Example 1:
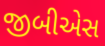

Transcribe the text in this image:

જીબીએસ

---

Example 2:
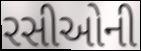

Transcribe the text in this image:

રસીઓની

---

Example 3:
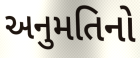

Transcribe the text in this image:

અનુમતિનો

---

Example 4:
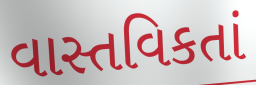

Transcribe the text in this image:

વાસ્તવિકતાં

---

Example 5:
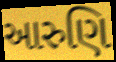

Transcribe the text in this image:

આરુણિ